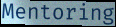
Mentoring